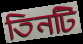
তিনটি